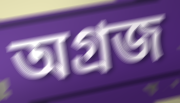
অগ্রজ